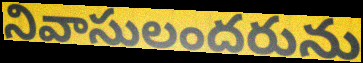
నివాసులందరును